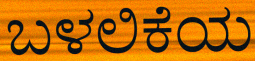
ಬಳಲಿಕೆಯ